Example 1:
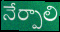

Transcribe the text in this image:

నేర్పాలి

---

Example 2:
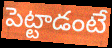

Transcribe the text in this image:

పెట్టాడంటే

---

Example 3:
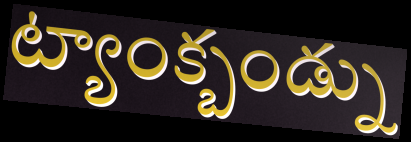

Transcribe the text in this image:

ట్యాంక్బండ్ను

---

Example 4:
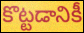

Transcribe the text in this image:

కొట్టడానికీ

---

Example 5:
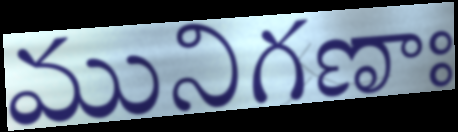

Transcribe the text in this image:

మునిగణాః